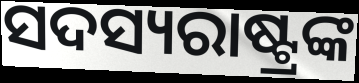
ସଦସ୍ୟରାଷ୍ଟ୍ରଙ୍କ